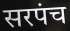
सरपंच